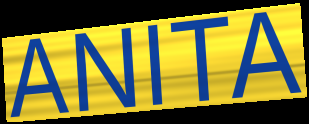
ANITA